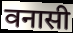
वनासी